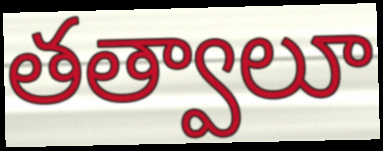
తత్వాలూ